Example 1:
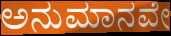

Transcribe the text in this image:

ಅನುಮಾನವೇ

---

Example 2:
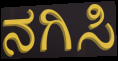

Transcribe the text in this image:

ನಗಿಸಿ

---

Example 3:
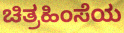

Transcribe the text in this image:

ಚಿತ್ರಹಿಂಸೆಯ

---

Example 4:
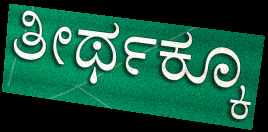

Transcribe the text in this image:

ತೀರ್ಥಕ್ಕೂ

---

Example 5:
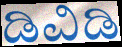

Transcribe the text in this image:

ಡಿವಿಡಿ